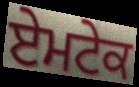
ਏਮਟੇਕ